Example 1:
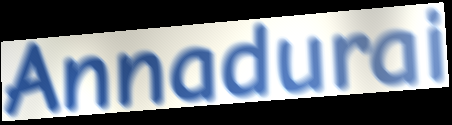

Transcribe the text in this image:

Annadurai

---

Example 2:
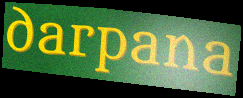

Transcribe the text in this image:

darpana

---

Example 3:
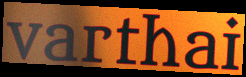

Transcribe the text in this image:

varthai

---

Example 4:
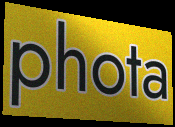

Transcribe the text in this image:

phota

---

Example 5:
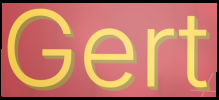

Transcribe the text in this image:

Gert